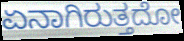
ಏನಾಗಿರುತ್ತದೋ